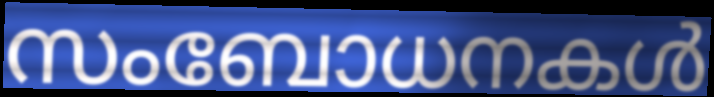
സംബോധനകൾ